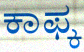
ಕಾಫ್ಕ